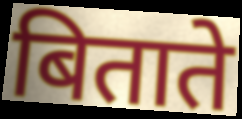
बिताते